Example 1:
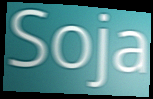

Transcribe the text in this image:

Soja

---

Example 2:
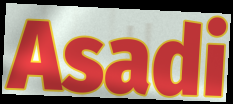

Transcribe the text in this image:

Asadi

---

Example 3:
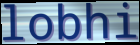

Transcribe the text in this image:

lobhi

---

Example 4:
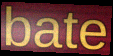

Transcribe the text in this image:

bate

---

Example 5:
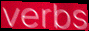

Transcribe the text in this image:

verbs